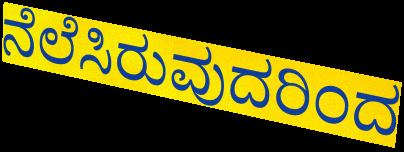
ನೆಲೆಸಿರುವುದರಿಂದ